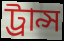
ট্ৰান্স